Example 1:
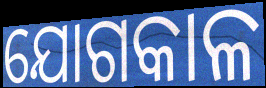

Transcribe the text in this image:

ଯୋଗକାଳ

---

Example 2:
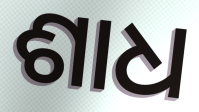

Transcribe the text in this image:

ଶାଧ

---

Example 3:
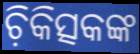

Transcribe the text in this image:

ଚ଼ିକିତ୍ସକଙ୍କ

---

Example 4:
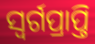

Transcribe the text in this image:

ସ୍ଵର୍ଗପ୍ରାପ୍ତି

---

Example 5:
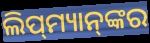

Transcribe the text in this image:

ଲିପ୍‌ମ୍ୟାନ୍‌ଙ୍କର